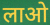
लाओ